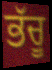
ਭੱਚੂ